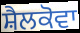
ਸ਼ੈਲਕੋਵਾ